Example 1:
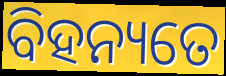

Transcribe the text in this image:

ବିହନ୍ୟତେ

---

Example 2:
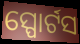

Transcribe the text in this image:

ସ୍ପୋର୍ଟସ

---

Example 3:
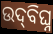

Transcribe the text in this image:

ଉଦ୍‌ବିଘ୍ନ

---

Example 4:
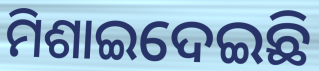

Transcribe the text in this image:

ମିଶାଇଦେଇଛି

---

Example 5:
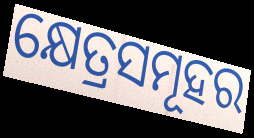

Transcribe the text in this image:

କ୍ଷେତ୍ରସମୂହର